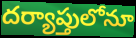
దర్యాప్తులోనూ